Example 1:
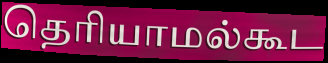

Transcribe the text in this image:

தெரியாமல்கூட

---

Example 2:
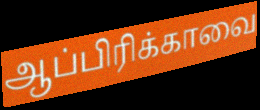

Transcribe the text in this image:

ஆப்பிரிக்காவை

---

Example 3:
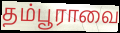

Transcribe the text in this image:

தம்பூராவை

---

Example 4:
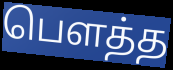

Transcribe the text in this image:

பெளத்த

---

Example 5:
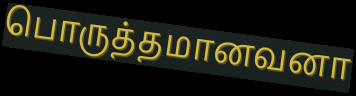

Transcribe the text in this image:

பொருத்தமானவனா